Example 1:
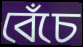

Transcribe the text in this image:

বেঁচে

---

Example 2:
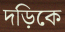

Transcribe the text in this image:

দড়িকে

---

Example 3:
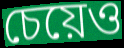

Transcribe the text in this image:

চেয়েও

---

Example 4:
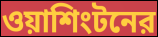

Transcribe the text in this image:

ওয়াশিংটনের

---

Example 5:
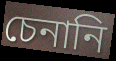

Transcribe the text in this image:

চেনানি